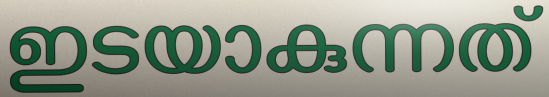
ഇടയാകുന്നത്